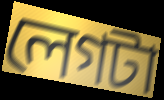
লেগটা